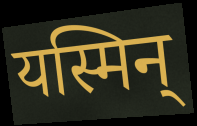
यस्मिन्